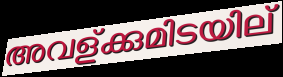
അവള്ക്കുമിടയില്